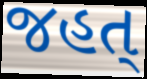
જહત્